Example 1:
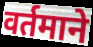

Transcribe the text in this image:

वर्तमाने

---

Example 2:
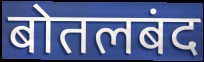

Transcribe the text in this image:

बोतलबंद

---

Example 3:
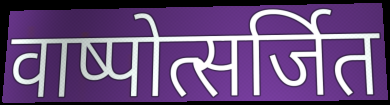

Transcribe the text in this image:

वाष्पोत्सर्जित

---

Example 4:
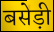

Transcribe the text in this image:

बसेड़ी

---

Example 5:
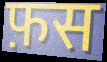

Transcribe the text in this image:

फ़स